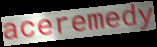
aceremedy